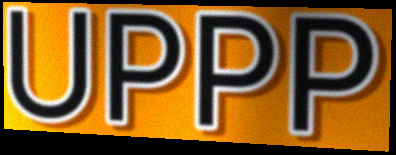
UPPP